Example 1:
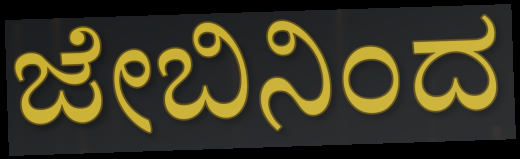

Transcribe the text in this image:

ಜೇಬಿನಿಂದ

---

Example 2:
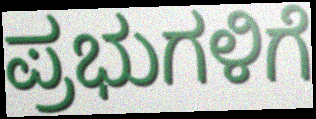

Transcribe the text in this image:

ಪ್ರಭುಗಳಿಗೆ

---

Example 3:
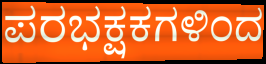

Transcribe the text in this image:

ಪರಭಕ್ಷಕಗಳಿಂದ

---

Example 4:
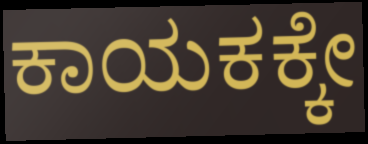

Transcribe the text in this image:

ಕಾಯಕಕ್ಕೇ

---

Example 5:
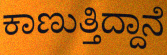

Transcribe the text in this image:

ಕಾಣುತ್ತಿದ್ದಾನೆ